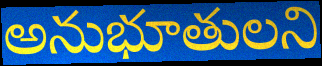
అనుభూతులని